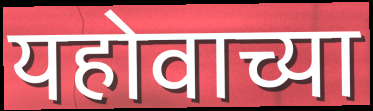
यहोवाच्या